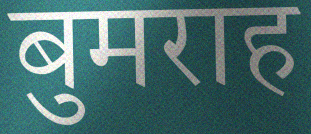
बुमराह